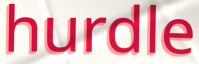
hurdle